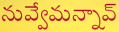
నువ్వేమన్నావ్